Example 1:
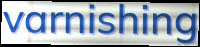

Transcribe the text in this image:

varnishing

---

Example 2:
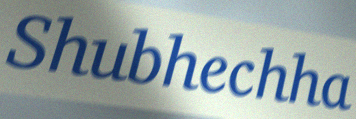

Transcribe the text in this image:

Shubhechha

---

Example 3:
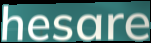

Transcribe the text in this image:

hesare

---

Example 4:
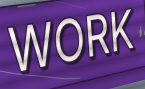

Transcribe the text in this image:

WORK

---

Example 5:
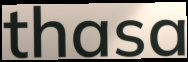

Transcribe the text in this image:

thasa